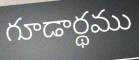
గూడార్థము